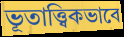
ভূতাত্ত্বিকভাবে